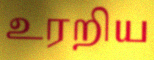
உரறிய